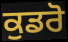
ਕੁਡਰੋ